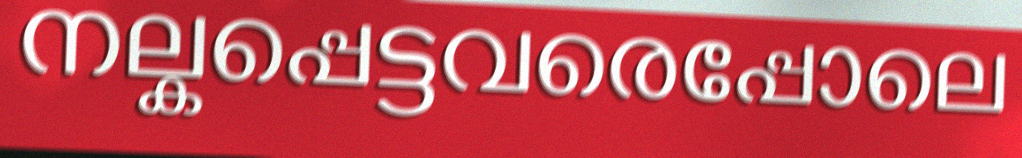
നല്കപ്പെട്ടവരെപ്പോലെ